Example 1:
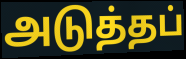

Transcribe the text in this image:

அடுத்தப்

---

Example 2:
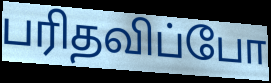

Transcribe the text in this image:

பரிதவிப்போ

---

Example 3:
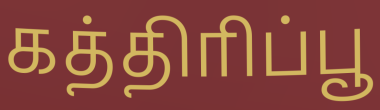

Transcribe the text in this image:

கத்திரிப்பூ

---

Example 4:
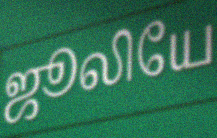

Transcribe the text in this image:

ஜூலியே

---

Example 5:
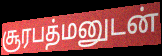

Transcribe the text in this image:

சூரபத்மனுடன்